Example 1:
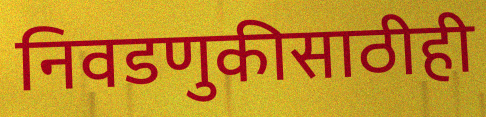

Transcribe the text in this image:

निवडणुकीसाठीही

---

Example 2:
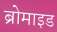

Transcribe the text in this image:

ब्रोमाइड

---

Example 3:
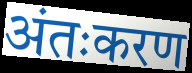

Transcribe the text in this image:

अंतःकरण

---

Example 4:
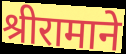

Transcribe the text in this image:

श्रीरामाने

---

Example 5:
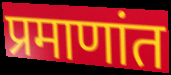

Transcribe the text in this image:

प्रमाणांत